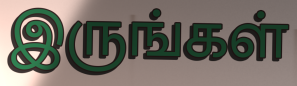
இருங்கள்